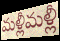
మళ్లీమళ్లీ